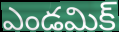
ఎండమిక్